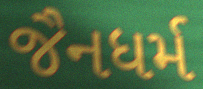
જૈનધર્મ